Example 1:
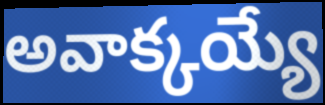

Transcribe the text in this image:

అవాక్కయ్యే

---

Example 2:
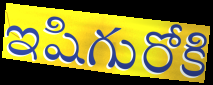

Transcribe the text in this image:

ఇషిగురోకి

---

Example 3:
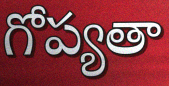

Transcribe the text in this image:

గోప్యతా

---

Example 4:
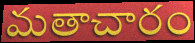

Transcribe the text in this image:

మతాచారం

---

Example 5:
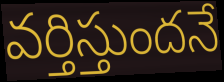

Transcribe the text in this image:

వర్తిస్తుందనే